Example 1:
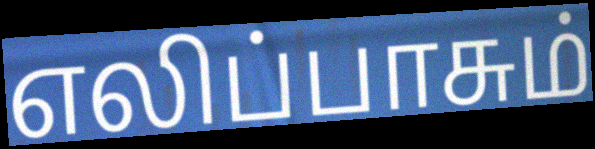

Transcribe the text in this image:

எலிப்பாசும்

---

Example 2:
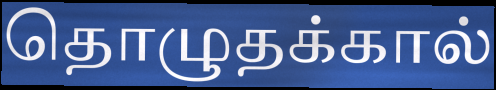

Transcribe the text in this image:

தொழுதக்கால்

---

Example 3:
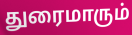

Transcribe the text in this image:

துரைமாரும்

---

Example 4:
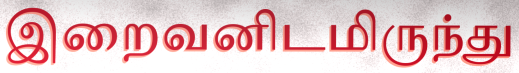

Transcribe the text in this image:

இறைவனிடமிருந்து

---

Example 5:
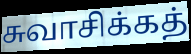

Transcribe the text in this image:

சுவாசிக்கத்